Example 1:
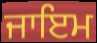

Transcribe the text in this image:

ਜਾਇਮ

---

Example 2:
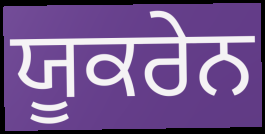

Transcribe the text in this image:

ਯੂਕਰੇਨ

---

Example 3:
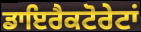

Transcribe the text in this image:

ਡਾਇਰੈਕਟੋਰੇਟਾਂ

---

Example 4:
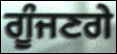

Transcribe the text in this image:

ਗੂੰਜਣਗੇ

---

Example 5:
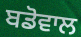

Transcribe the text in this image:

ਬਡੋਵਾਲ